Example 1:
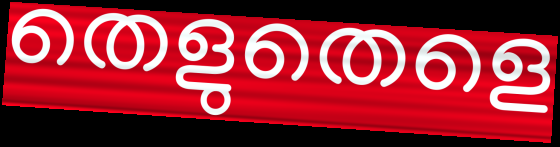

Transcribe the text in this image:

തെളുതെളെ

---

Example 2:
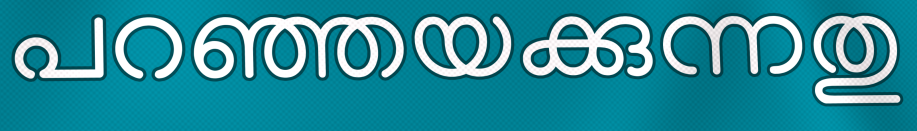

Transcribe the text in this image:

പറഞ്ഞയക്കുന്നതു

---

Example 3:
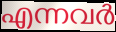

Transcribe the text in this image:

എന്നവർ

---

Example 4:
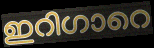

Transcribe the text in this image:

ഇറിഗാറെ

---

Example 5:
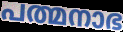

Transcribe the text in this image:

പത്മനാഭ